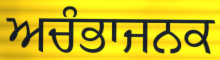
ਅਚੰਭਾਜਨਕ